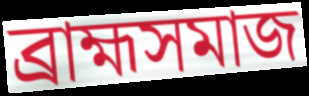
ব্রাহ্মসমাজ